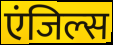
एंजिल्‍स